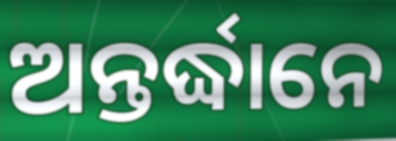
ଅନ୍ତର୍ଦ୍ଧାନେ